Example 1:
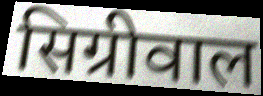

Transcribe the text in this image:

सिग्रीवाल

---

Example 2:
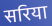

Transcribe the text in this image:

सरिया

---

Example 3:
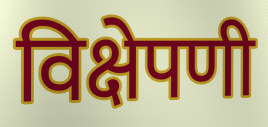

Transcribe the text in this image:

विक्षेपणी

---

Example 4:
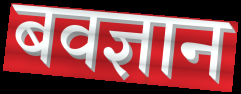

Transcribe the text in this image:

बवज्ञान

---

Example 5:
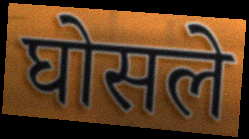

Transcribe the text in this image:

घोसले